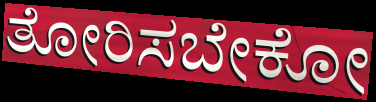
ತೋರಿಸಬೇಕೋ